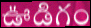
ఊడిగం